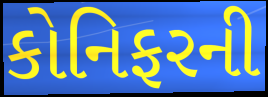
કોનિફરની